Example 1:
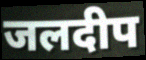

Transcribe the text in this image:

जलदीप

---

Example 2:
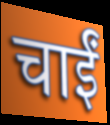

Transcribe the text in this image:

चाईं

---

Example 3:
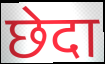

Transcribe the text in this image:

छेदा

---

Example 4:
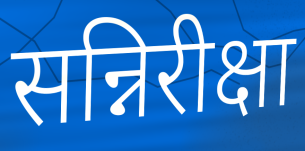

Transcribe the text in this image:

सन्निरीक्षा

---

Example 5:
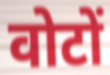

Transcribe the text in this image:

वोटों